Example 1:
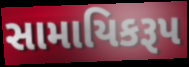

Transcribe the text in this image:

સામાયિકરૂપ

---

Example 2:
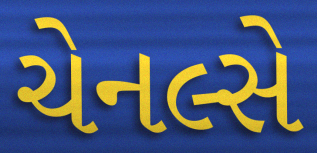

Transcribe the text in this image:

ચેનલ્સે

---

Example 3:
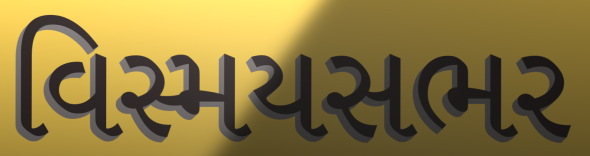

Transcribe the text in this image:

વિસ્મયસભર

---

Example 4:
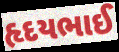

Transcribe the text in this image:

હૃદયભાઈ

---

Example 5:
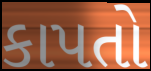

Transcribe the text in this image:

કાપતો